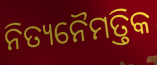
ନିତ୍ୟନୈମତ୍ତିକ